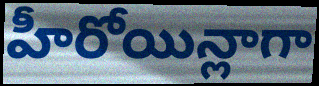
హీరోయిన్లాగా